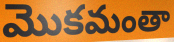
మొకమంతా